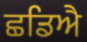
ਛਡਿਐ